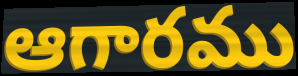
ఆగారము